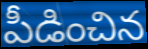
పీడించిన